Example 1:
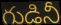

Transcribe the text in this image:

గుడినీ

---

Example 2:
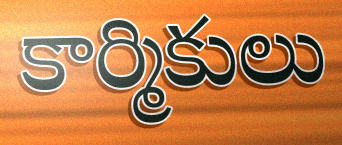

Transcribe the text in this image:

కార్మికులు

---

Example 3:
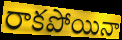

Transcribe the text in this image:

రాకపోయినా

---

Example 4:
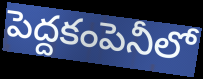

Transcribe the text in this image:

పెద్దకంపెనీలో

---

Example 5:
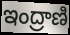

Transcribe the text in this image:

ఇంద్రాణి